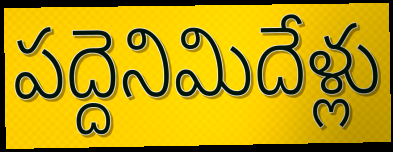
పద్దెనిమిదేళ్లు